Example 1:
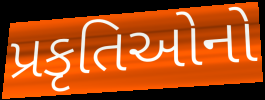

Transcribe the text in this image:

પ્રકૃતિઓનો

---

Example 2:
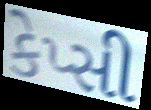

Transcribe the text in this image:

કેપ્સી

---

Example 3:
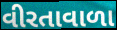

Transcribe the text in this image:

વીરતાવાળા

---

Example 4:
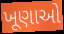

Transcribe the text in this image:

ખૂણાઓ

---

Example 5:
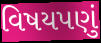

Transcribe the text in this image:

વિષયપણું